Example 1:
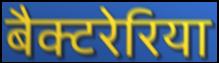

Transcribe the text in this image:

बैक्टरेरिया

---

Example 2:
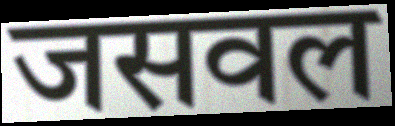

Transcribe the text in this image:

जसवल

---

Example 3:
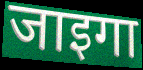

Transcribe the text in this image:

जाइगा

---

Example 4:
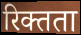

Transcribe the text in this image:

रिक्तता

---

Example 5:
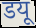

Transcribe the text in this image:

डयू